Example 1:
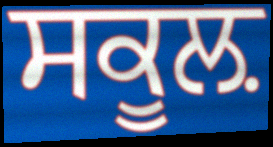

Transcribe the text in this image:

ਸਕੂਲ਼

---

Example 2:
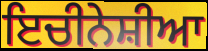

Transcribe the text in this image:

ਇਚੀਨੇਸ਼ੀਆ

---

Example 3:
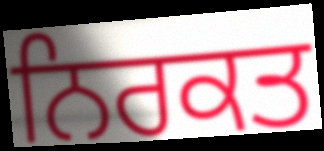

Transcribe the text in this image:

ਨਿਰਕਤ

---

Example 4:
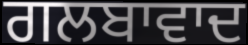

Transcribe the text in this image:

ਗਲਬਾਵਾਦ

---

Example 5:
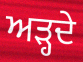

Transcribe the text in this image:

ਅੜ੍ਹਦੇ